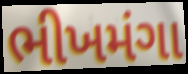
ભીખમંગા